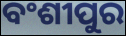
ବଂଶୀପୁର